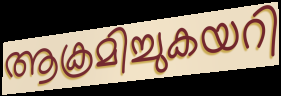
ആക്രമിച്ചുകയറി